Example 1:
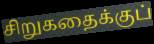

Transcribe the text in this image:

சிறுகதைக்குப்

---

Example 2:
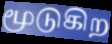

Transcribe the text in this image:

மூடுகிற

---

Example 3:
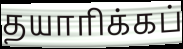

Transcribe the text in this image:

தயாரிக்கப்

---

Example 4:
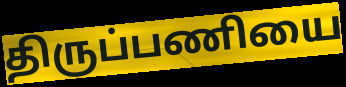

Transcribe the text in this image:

திருப்பணியை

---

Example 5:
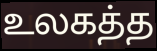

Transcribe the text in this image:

உலகத்த